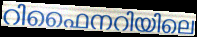
റിഫൈനറിയിലെ